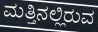
ಮತ್ತಿನಲ್ಲಿರುವ